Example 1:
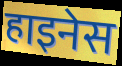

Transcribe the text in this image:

हाइनेस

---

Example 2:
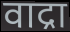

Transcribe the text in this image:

वाद्रा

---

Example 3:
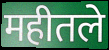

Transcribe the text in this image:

महीतले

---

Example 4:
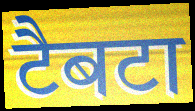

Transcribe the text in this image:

टैबटा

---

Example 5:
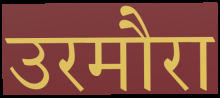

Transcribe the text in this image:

उरमौरा